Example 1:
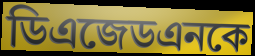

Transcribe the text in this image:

ডিএজেডএনকে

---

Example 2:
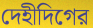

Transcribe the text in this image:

দেহীদিগের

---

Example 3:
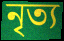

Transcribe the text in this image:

নৃত্য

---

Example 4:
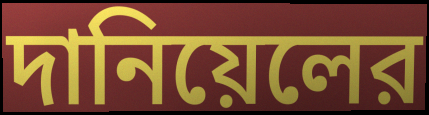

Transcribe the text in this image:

দানিয়েলের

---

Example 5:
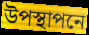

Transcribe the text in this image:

উপস্থাপনে